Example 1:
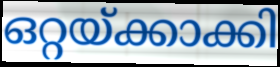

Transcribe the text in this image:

ഒറ്റയ്ക്കാക്കി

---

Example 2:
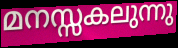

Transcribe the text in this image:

മനസ്സകലുന്നു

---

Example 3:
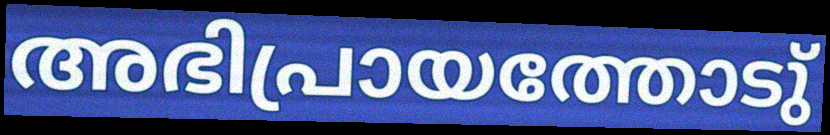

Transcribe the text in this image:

അഭിപ്രായത്തോടു്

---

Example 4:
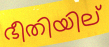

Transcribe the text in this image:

ഭീതിയില്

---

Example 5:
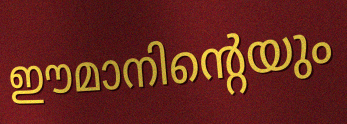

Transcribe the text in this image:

ഈമാനിന്റെയും